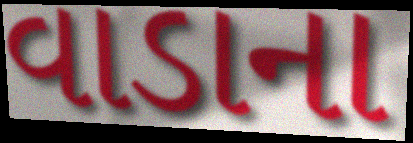
વાડાના